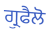
ਗ੍ਰੁਫੈਲੋ